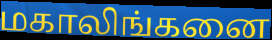
மகாலிங்கனை